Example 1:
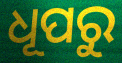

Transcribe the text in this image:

ଧୂପରୁ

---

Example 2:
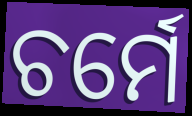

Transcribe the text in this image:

ଚର୍ମେ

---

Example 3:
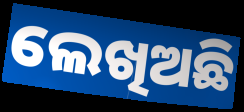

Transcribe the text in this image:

ଲେଖିଅଛି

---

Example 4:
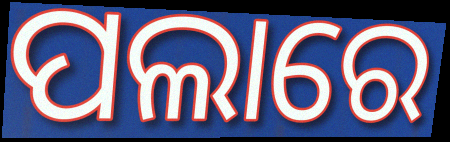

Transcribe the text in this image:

ପଲାରେ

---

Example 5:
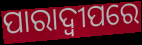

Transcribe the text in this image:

ପାରାଦ୍ୱୀପରେ